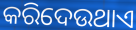
କରିଦେଉଥାଏ